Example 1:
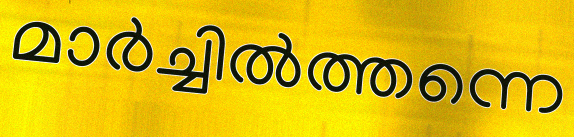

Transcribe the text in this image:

മാർച്ചിൽത്തന്നെ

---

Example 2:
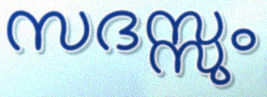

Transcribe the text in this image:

സദസ്സും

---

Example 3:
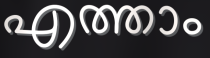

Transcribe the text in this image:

എത്താം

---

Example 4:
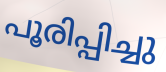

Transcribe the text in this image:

പൂരിപ്പിച്ചു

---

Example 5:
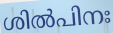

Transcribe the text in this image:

ശിൽപിനഃ